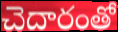
చెదారంతో